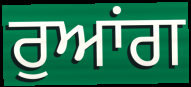
ਰੁਆਂਗ